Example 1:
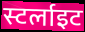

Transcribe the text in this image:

स्टर्लाइट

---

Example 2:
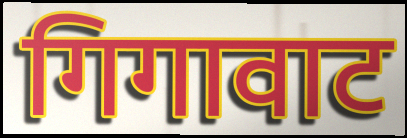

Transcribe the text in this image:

गिगावाट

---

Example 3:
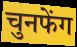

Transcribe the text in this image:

चुनफेंग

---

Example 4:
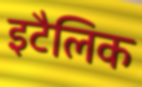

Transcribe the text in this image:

इटैलिक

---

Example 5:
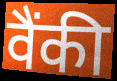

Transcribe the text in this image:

वैंकी